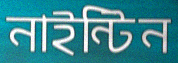
নাইন্টিন